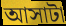
আসাটা